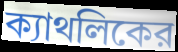
ক্যাথলিকের